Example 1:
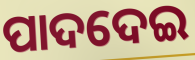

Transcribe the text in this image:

ପାଦଦେଇ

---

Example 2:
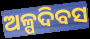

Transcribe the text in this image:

ଅଳ୍ପଦିବସ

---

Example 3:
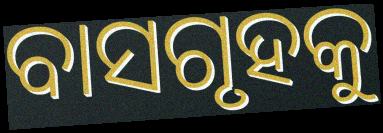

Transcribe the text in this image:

ବାସଗୃହକୁ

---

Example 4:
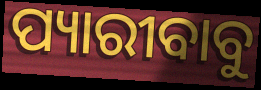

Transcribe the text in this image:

ପ୍ୟାରୀବାବୁ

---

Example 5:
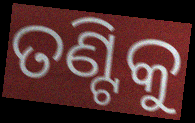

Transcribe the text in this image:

ତଣ୍ଟିକୁ